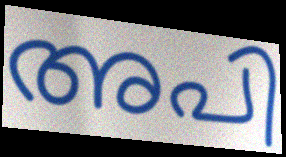
അപി